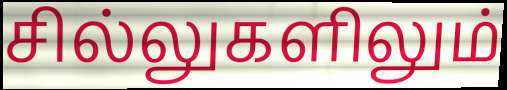
சில்லுகளிலும்